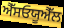
ਐੱਸਓਯੂਐੱਲ